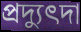
প্রদ্যুৎদা